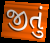
જીતું